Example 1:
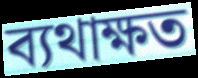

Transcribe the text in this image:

ব্যথাক্ষত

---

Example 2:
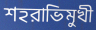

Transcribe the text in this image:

শহরাভিমুখী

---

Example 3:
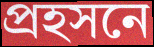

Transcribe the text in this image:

প্রহসনে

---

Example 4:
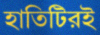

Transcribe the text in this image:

হাতিটিরই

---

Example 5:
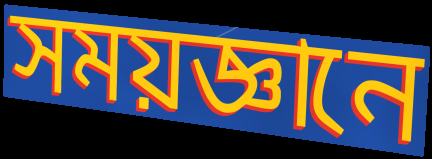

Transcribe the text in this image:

সময়জ্ঞানে